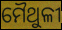
ମୈଥୁଳୀ